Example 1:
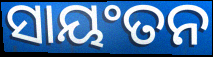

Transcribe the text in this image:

ସାୟଂତନ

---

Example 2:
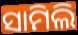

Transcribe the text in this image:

ସାମିଲି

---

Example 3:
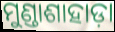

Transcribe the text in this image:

ମୁଣ୍ଡାଶାହାଡ଼ା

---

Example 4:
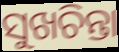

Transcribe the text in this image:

ସୁଖଚିନ୍ତା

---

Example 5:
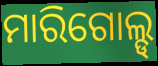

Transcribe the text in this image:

ମାରିଗୋଲ୍ଡ୍